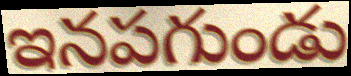
ఇనపగుండు